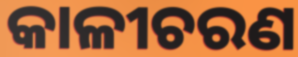
କାଳୀଚରଣ